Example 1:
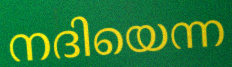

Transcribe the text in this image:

നദിയെന്ന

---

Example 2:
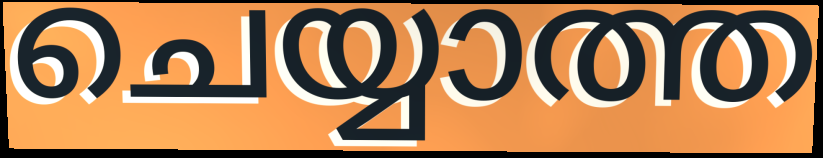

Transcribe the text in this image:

ചെയ്യാത്ത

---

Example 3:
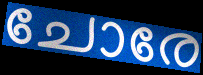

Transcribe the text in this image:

ചോരേ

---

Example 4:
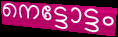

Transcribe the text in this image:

നെട്ടോട്ടം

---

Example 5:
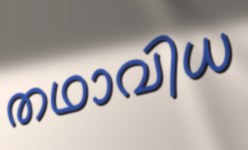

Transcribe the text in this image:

തഥാവിധ